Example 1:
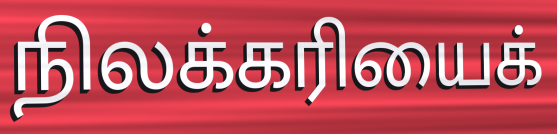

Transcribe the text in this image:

நிலக்கரியைக்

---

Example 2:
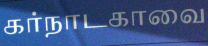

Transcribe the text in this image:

கர்நாடகாவை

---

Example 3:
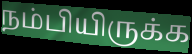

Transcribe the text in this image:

நம்பியிருக்க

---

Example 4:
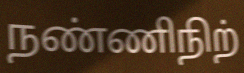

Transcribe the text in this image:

நண்ணிநிற்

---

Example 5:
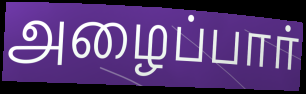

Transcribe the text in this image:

அழைப்பார்